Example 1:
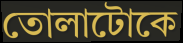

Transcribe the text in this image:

তোলাটোকে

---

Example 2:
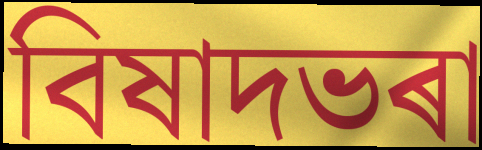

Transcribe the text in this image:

বিষাদভৰা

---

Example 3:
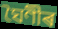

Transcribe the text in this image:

ঘৈণীৰ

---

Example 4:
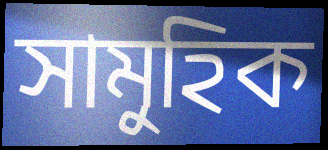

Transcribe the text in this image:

সামুহিক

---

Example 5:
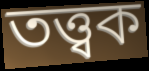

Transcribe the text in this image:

তত্ত্বক